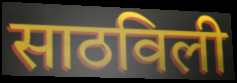
साठविली